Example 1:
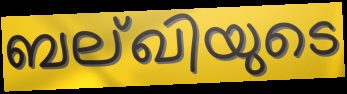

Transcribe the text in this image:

ബല്ഖിയുടെ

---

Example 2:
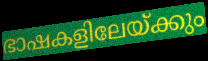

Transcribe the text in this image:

ഭാഷകളിലേയ്ക്കും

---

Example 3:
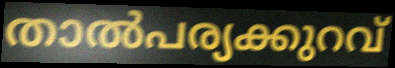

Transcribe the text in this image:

താൽപര്യക്കുറവ്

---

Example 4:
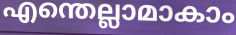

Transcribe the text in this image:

എന്തെല്ലാമാകാം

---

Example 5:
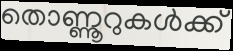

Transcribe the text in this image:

തൊണ്ണൂറുകൾക്ക്